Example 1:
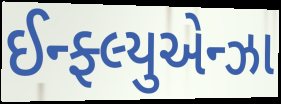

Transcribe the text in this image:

ઈન્ફ્લ્યુએન્ઝા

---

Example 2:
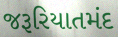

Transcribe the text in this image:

જરૂરિયાતમંદ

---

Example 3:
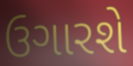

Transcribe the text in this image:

ઉગારશે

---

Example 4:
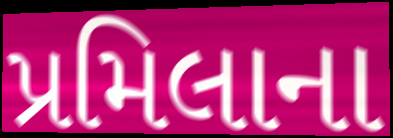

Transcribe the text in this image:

પ્રમિલાના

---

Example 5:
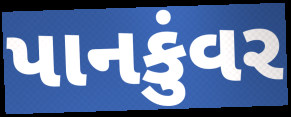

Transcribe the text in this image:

પાનકુંવર